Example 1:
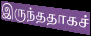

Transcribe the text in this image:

இருந்ததாகச்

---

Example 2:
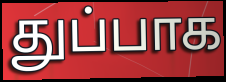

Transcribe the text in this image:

துப்பாக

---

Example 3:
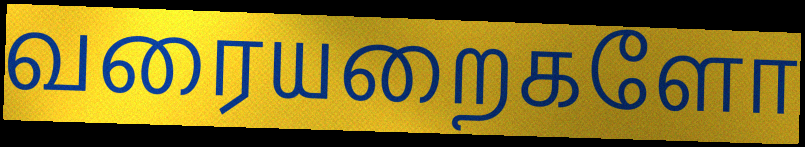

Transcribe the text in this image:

வரையறைகளோ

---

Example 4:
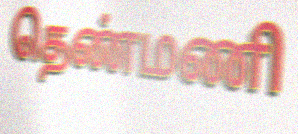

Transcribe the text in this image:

தெண்மணி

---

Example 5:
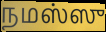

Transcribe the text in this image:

நமஸ்ஸு